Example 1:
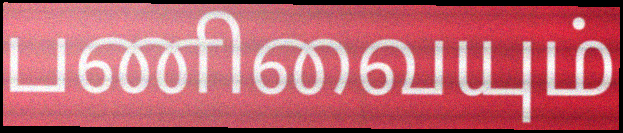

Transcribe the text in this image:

பணிவையும்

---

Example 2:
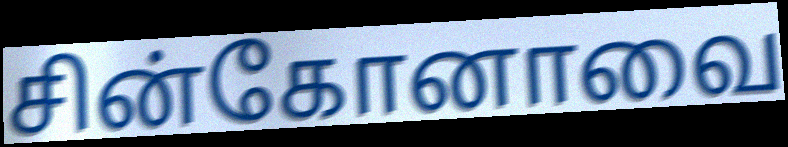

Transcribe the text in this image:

சின்கோனாவை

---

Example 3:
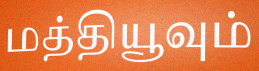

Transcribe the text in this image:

மத்தியூவும்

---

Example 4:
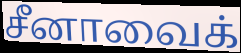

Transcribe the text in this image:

சீனாவைக்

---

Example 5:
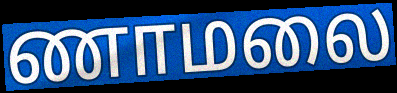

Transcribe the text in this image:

ணாமலை